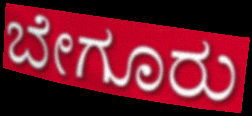
ಬೇಗೂರು